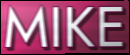
MIKE